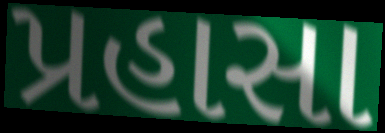
પ્રહાસા